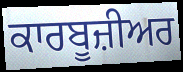
ਕਾਰਬੂਜ਼ੀਅਰ